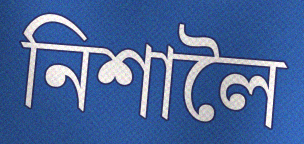
নিশালৈ